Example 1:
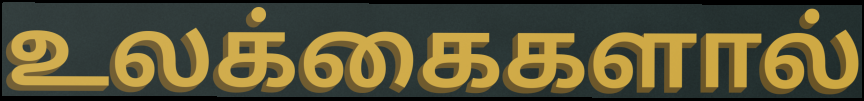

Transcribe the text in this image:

உலக்கைகளால்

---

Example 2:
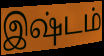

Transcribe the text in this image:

இஷ்டம்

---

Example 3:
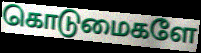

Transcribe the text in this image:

கொடுமைகளே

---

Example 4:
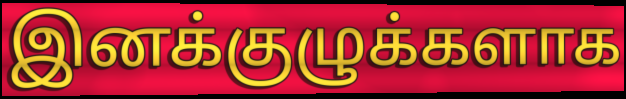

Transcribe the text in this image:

இனக்குழுக்களாக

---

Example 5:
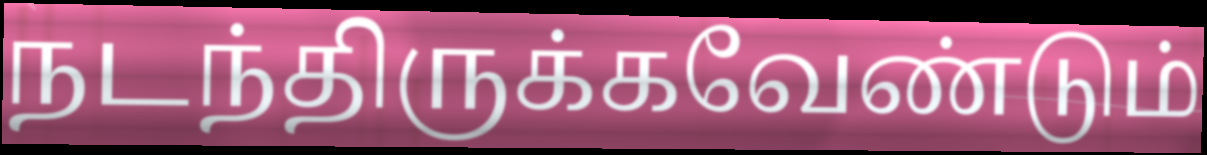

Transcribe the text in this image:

நடந்திருக்கவேண்டும்